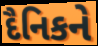
દૈનિકને